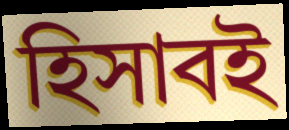
হিসাবই